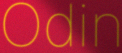
Odin